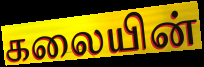
கலையின்